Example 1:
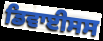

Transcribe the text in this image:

ਡਿਵਾਈਸਸ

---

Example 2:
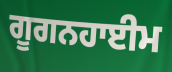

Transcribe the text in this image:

ਗੂਗਨਹਾਈਮ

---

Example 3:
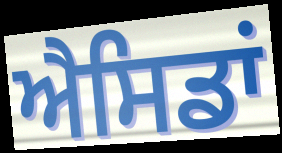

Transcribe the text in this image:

ਐਸਿਡਾਂ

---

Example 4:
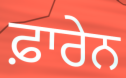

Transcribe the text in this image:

ਫ਼ਾਰੇਨ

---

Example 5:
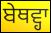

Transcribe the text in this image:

ਬੇਥਵ੍ਹਾ